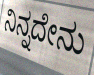
ನಿನ್ನದೇನು